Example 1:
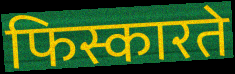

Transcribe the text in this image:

फिस्कारते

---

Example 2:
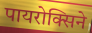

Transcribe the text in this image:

पायरोक्सिने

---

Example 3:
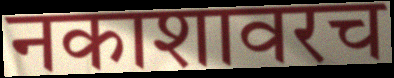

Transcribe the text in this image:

नकाशावरच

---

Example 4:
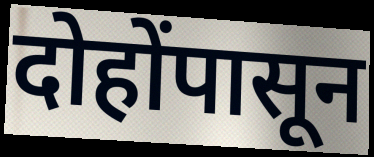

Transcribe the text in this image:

दोहोंपासून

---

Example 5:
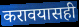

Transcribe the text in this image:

करावयासही